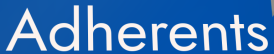
Adherents